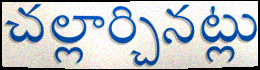
చల్లార్చినట్లు